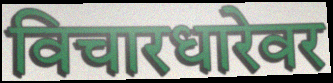
विचारधारेवर